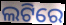
ଲଟିରେ